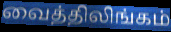
வைத்திலிங்கம்